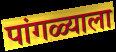
पांगळ्याला